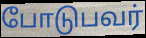
போடுபவர்